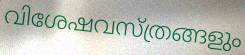
വിശേഷവസ്ത്രങ്ങളും